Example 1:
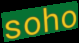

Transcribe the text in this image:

soho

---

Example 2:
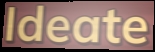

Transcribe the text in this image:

Ideate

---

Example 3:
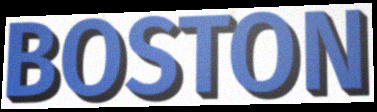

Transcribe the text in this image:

BOSTON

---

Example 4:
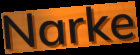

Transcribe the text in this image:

Narke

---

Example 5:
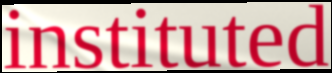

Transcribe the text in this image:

instituted